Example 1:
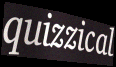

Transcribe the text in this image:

quizzical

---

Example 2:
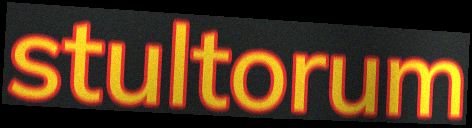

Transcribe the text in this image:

stultorum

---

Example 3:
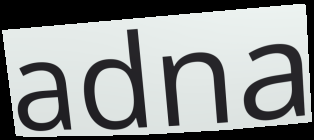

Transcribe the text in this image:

adna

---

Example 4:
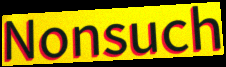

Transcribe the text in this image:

Nonsuch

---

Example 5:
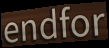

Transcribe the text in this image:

endfor